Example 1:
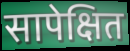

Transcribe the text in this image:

सापेक्षित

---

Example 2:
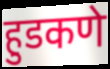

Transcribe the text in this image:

हुडकणे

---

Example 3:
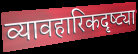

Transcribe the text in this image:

व्यावहारिकदृष्ट्या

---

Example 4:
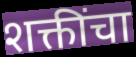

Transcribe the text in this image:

शक्तींचा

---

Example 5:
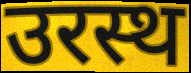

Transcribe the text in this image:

उरस्थ